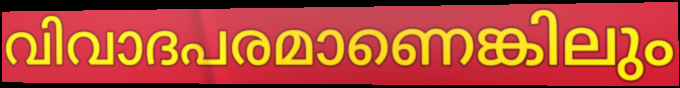
വിവാദപരമാണെങ്കിലും